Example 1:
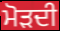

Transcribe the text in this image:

ਮੋੜਦੀ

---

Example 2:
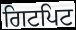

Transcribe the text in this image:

ਗਿਟਪਿਟ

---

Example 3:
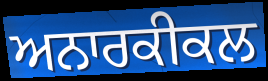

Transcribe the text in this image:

ਅਨਾਰਕੀਕਲ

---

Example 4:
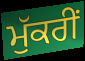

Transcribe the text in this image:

ਮੁੱਕਰੀਂ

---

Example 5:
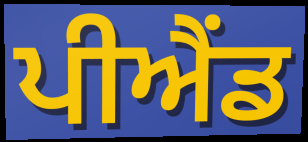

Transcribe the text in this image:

ਪੀਐਂਡ